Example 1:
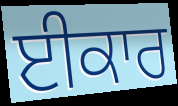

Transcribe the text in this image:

ਈਕਾਰ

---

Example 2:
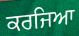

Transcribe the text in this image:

ਕਰਜਿਆ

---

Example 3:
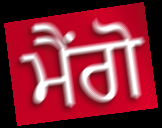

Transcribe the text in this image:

ਮੈਂਗੋ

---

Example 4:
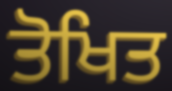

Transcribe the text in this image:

ਤੋਖਿਤ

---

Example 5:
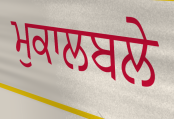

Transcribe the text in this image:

ਮੁਕਾਲਬਲੇ